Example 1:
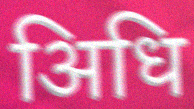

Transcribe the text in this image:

अिधि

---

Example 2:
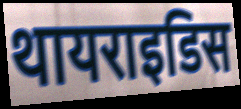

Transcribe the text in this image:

थायराइडिस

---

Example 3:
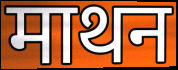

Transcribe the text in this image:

माथन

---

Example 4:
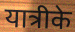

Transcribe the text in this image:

यात्रीके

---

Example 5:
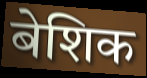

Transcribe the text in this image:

बेशिक